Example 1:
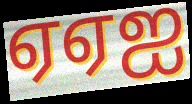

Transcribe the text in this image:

ஏஏஐ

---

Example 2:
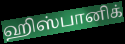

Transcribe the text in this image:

ஹிஸ்பானிக்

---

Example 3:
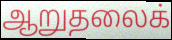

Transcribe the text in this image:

ஆறுதலைக்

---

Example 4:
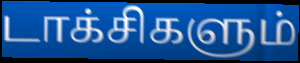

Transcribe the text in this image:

டாக்சிகளும்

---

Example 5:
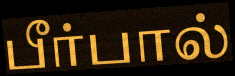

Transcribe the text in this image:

பீர்பால்